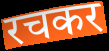
रचकर